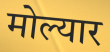
मोल्यार